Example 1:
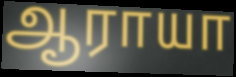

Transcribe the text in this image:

ஆராயா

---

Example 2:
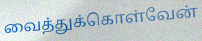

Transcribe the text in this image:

வைத்துக்கொள்வேன்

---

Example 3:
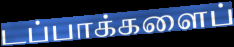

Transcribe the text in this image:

டப்பாக்களைப்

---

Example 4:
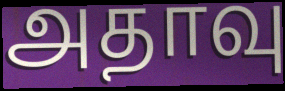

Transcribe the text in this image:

அதாவு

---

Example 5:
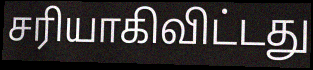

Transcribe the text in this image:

சரியாகிவிட்டது